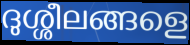
ദുശ്ശീലങ്ങളെ